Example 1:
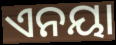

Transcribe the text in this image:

ଏନୟା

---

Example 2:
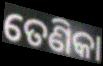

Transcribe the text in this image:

ତେଣିକା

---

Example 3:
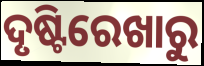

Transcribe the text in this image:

ଦୃଷ୍ଟିରେଖାରୁ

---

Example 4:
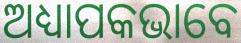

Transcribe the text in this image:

ଅଧ୍ୟାପକଭାବେ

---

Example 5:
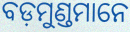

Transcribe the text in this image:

ବଡ଼ମୁଣ୍ଡମାନେ